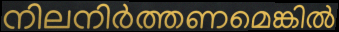
നിലനിർത്തണമെങ്കിൽ